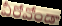
వీరోవోండా